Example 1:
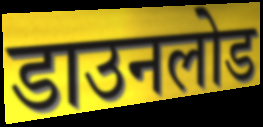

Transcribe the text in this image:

डाउनलोड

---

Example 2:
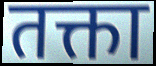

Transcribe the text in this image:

तक्ता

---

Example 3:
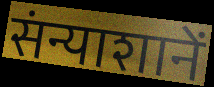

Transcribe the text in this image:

संन्याशानें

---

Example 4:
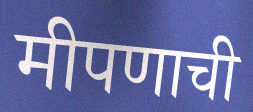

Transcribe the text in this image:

मीपणाची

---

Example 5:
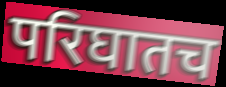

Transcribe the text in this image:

परिघातच